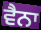
ਵੈਨਾ